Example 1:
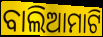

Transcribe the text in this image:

ବାଲିଆମାଟି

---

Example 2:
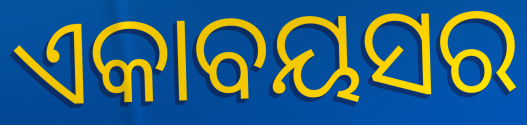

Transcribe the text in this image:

ଏକାବୟସର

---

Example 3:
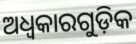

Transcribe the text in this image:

ଅଧ୍ବକାରଗୁଡ଼ିକ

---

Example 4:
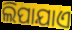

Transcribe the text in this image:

ଲିପାଯାଏ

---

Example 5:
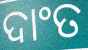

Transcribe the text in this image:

ଦାଂତ